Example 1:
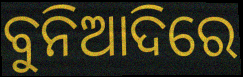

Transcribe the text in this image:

ବୁନିଆଦିରେ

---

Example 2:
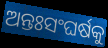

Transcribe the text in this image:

ଅନ୍ତଃସଂଘର୍ଷକୁ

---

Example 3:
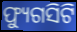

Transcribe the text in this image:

ଫ୍ୟୁଗସିଟି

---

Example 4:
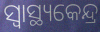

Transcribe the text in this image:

ସ୍ବାସ୍ଥ୍ୟକେନ୍ଦ୍ର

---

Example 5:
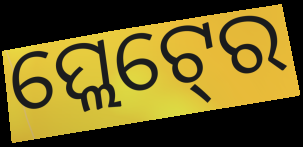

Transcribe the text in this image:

ପ୍ଲେଟ୍‍ରେ